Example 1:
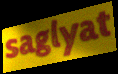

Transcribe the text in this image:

saglyat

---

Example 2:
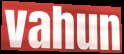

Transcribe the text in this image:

vahun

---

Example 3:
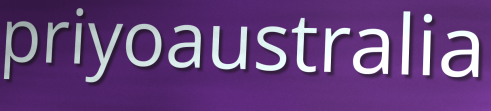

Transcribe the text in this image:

priyoaustralia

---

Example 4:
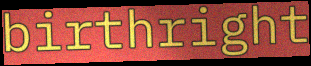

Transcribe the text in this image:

birthright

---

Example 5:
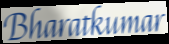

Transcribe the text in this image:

Bharatkumar